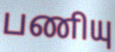
பணியு